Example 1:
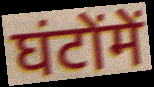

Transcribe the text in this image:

घंटोंमें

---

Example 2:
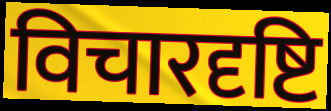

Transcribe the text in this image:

विचारदृष्टि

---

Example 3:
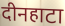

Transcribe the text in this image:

दीनहाटा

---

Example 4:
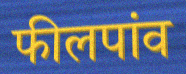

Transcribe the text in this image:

फीलपांव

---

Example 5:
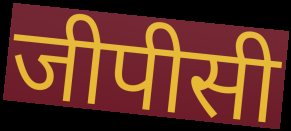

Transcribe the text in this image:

जीपीसी